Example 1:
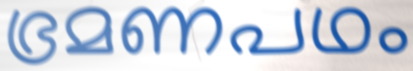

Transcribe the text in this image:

ഭ്രമണപഥം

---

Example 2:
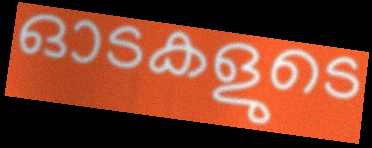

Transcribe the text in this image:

ഓടകളുടെ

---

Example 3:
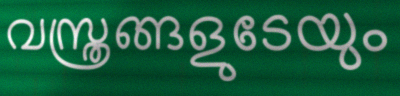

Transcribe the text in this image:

വസ്ത്രങ്ങളുടേയും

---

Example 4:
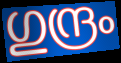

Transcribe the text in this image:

ഗുന്ദ്രം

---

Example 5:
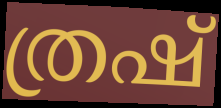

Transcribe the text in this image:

ത്രഷ്